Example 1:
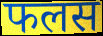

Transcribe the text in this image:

फलस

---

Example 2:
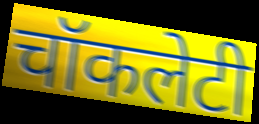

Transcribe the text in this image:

चॉकलेटी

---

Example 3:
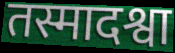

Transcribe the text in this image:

तस्मादश्वा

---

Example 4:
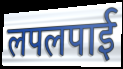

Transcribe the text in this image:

लपलपाई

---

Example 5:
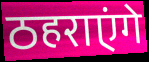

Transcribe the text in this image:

ठहराएंगे